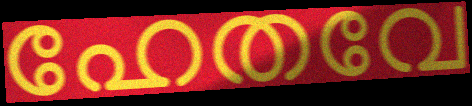
ഹേതവേ